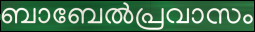
ബാബേൽപ്രവാസം